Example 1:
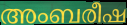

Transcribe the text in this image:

അംബരീഷ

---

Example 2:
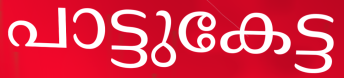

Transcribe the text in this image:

പാട്ടുകേട്ട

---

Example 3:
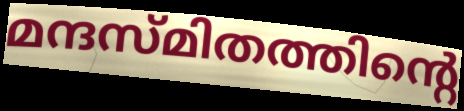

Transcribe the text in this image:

മന്ദസ്മിതത്തിന്റെ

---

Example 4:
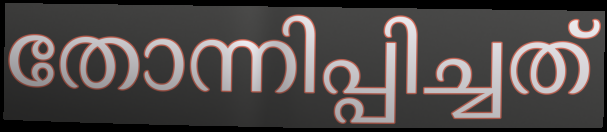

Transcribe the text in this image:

തോന്നിപ്പിച്ചത്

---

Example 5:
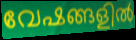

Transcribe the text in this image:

വേഷങ്ങളിൽ